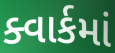
ક્વાર્કમાં